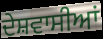
ਦੇਸ਼ਵਾਸੀਆਂ